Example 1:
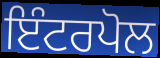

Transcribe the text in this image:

ਇੰਟਰਪੋਲ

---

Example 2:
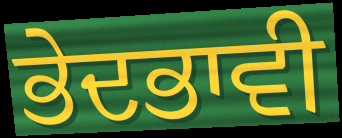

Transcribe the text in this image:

ਭੇਦਭਾਵੀ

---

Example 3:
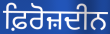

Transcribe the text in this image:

ਫ਼ਿਰੋਜ਼ਦੀਨ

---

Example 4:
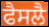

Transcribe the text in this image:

ਫੈਸਲੈ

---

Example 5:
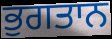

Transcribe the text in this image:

ਭੁਗਤਾਨ